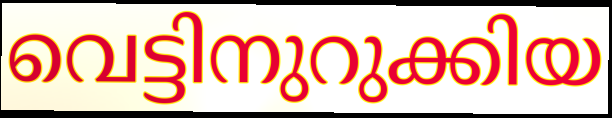
വെട്ടിനുറുക്കിയ